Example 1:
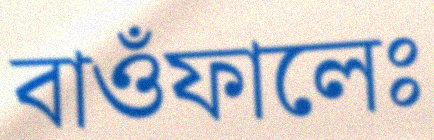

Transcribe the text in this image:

বাওঁফালেঃ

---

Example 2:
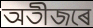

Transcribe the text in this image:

অতীজৰে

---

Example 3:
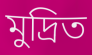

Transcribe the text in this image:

মুদ্ৰিত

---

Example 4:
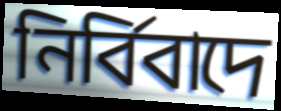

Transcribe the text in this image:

নিৰ্বিবাদে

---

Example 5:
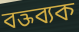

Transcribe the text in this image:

বক্তব্যক